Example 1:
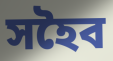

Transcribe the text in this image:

সহৈব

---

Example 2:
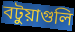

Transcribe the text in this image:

বটুয়াগুলি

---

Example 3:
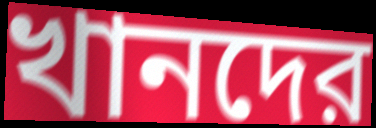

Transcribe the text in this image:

খানদের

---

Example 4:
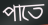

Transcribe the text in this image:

পাতে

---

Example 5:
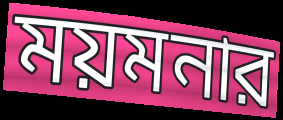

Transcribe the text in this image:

ময়মনার